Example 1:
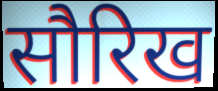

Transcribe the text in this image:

सौरिख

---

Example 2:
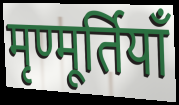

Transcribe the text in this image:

मृण्मूर्तियाँ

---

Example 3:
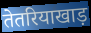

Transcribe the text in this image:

तेतरियाखाड़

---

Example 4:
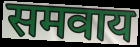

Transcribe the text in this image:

समवाय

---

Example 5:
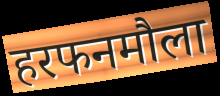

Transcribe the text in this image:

हरफनमौला